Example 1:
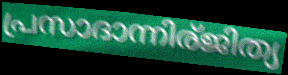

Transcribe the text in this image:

പ്രസാദാന്നിര്ജിത്യ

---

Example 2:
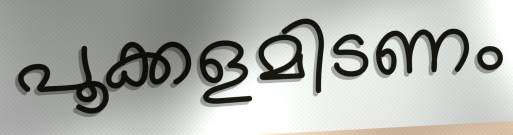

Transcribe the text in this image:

പൂക്കളമിടണം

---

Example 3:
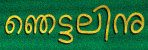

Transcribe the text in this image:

ഞെട്ടലിനു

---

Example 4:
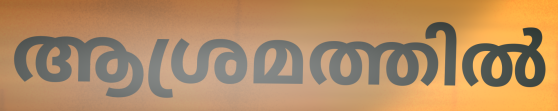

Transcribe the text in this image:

ആശ്രമത്തിൽ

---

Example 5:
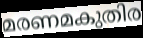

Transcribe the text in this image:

മരണമകുതിര